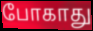
போகாது